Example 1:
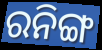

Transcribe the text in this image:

ରନିଙ୍ଗ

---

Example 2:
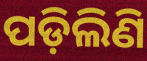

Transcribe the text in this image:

ପଡ଼ିଲିଣି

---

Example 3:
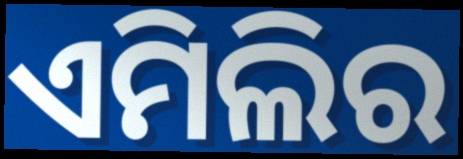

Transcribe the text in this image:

ଏମିଲିର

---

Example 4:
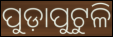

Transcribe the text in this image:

ପୁଡ଼ାପୁଟୁଳି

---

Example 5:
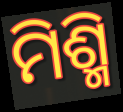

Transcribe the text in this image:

ମିଶ୍ମି